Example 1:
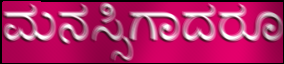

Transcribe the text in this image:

ಮನಸ್ಸಿಗಾದರೂ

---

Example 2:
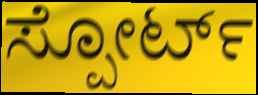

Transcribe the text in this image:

ಸ್ಪೋರ್ಟ್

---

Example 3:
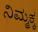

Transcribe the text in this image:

ನಿಮ್ಮಕ್ಕ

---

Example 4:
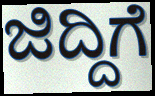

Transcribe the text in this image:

ಜಿದ್ದಿಗೆ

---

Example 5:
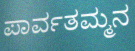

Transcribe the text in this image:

ಪಾರ್ವತಮ್ಮನ